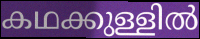
കഥക്കുള്ളിൽ